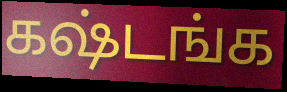
கஷ்டங்க